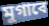
মুগাবে